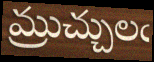
మ్రుచ్చులఁ